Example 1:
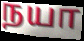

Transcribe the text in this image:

நயா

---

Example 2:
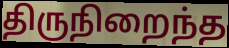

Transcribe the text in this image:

திருநிறைந்த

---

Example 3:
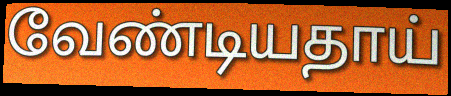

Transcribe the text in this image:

வேண்டியதாய்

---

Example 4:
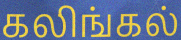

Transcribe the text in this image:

கலிங்கல்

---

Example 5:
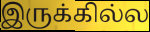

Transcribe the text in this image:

இருக்கில்ல